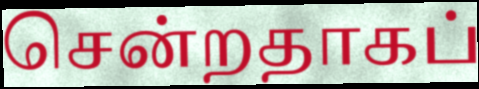
சென்றதாகப்